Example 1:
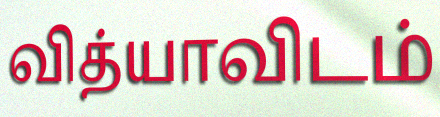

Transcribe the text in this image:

வித்யாவிடம்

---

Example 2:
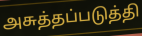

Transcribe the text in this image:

அசுத்தப்படுத்தி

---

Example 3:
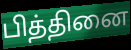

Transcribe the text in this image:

பித்தினை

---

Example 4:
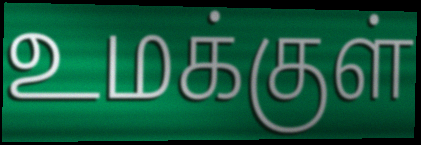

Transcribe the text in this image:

உமக்குள்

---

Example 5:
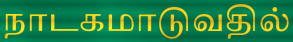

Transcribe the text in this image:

நாடகமாடுவதில்